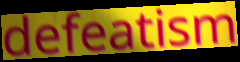
defeatism